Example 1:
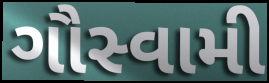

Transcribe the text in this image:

ગૌસ્વામી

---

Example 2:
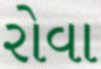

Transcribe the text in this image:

રોવા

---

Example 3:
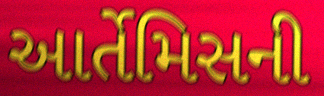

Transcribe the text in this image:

આર્તેમિસની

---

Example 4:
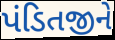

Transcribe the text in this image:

પંડિતજીને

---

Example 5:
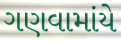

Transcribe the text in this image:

ગણવામાંયે